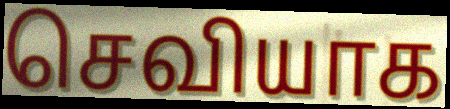
செவியாக